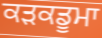
ਕੜਕਡੂਮਾ